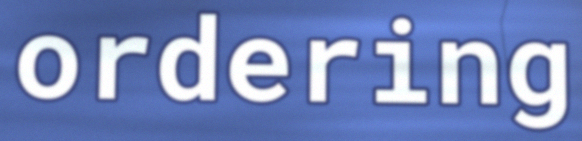
ordering